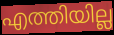
എത്തിയില്ല